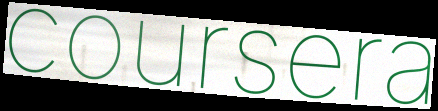
coursera